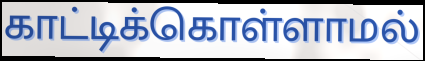
காட்டிக்கொள்ளாமல்